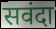
सवंदा